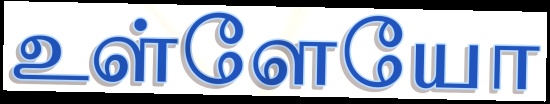
உள்ளேயோ